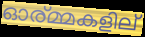
ഓര്മ്മകളില്